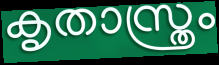
കൃതാസ്ത്രം